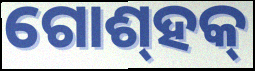
ଗୋଶ୍‍ହକ୍